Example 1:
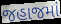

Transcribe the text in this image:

જહાજમાં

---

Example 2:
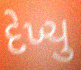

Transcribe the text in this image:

દેખ્યુ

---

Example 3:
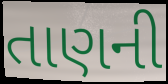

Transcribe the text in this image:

તાણની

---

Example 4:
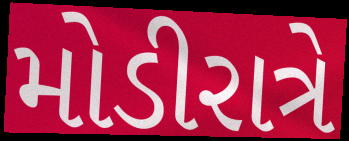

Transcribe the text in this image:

મોડીરાત્રે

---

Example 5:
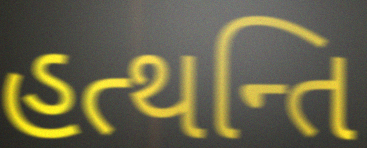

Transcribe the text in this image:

હત્થન્તિ